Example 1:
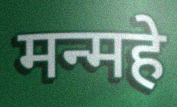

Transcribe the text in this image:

मन्महे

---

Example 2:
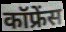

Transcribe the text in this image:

कॉफ्रेंस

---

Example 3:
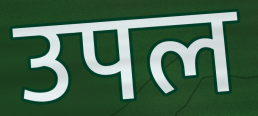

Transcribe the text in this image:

उपल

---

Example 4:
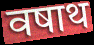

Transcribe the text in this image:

वषाथ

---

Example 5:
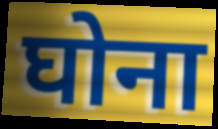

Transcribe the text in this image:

घोना